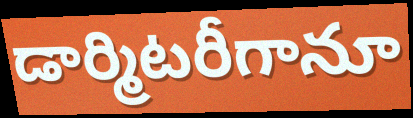
డార్మిటరీగానూ